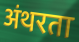
अंथरता